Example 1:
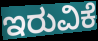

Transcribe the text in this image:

ಇರುವಿಕೆ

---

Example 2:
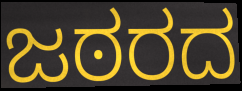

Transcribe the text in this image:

ಜಠರದ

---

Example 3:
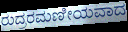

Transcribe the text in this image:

ರುದ್ರರಮಣೀಯವಾದ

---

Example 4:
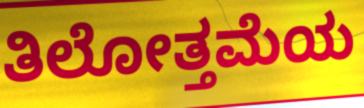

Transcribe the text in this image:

ತಿಲೋತ್ತಮೆಯ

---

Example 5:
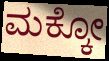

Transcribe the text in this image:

ಮಕ್ಕೋ